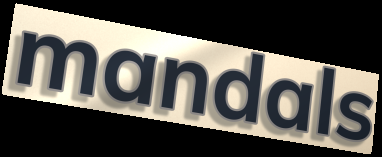
mandals